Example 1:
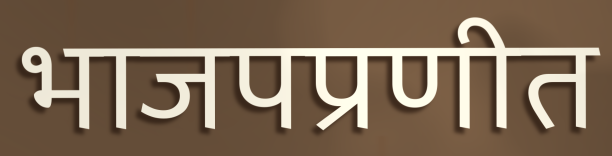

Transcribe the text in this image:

भाजपप्रणीत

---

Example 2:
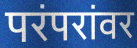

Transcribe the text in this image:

परंपरांवर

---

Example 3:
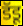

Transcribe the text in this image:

डॅडू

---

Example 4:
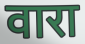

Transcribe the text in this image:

वारा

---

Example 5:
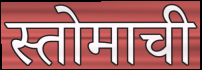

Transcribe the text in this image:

स्तोमाची